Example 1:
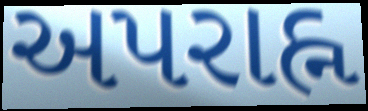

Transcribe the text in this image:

અપરાહ્ન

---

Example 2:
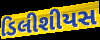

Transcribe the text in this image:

ડિલીશીયસ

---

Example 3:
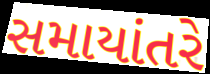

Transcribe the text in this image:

સમાયાંતરે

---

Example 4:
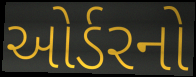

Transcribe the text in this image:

ઓર્ડરનો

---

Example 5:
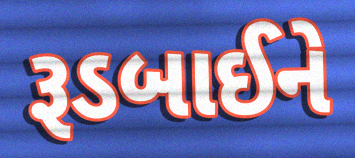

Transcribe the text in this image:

રૂડબાઈને